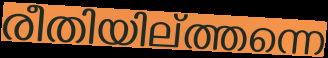
രീതിയില്ത്തന്നെ